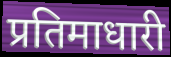
प्रतिमाधारी